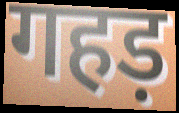
गहड़